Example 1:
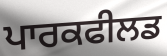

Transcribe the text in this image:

ਪਾਰਕਫੀਲਡ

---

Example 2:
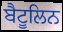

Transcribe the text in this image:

ਬੈਟੂਲਿਨ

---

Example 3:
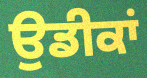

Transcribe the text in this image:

ਉਡੀਕਾਂ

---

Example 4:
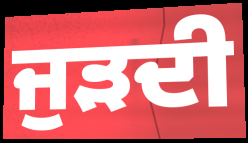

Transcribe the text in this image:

ਜੁੜਦੀ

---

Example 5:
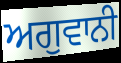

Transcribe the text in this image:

ਅਗੁਵਾਨੀ